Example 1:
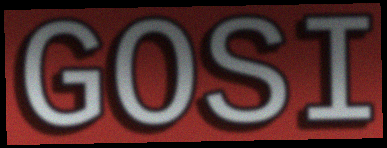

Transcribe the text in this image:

GOSI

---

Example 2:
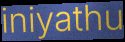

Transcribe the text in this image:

iniyathu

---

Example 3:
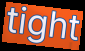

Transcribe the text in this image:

tight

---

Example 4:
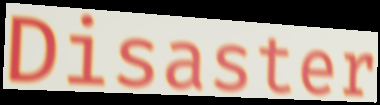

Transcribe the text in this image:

Disaster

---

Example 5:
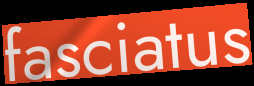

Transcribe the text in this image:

fasciatus